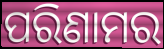
ପରିଣାମର